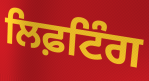
ਲਿਫ਼ਟਿੰਗ